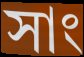
সাং